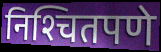
निश्चितपणे